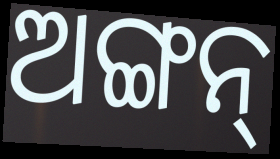
ଅଙ୍ଗନ୍